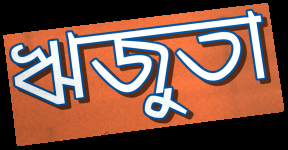
ঋজুতা